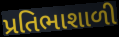
પ્રતિભાશાળી